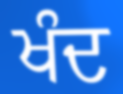
ਖੰਦ